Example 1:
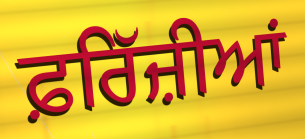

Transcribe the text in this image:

ਫ਼ਰਿੱਜ਼ੀਆਂ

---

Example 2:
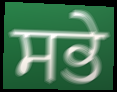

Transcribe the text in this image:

ਸਭੇ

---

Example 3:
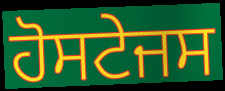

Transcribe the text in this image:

ਹੋਸਟੇਜਸ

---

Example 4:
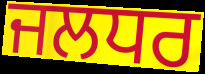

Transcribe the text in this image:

ਜਲਧਰ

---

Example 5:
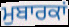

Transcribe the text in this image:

ਮੁਬਾਰਕਾਂ